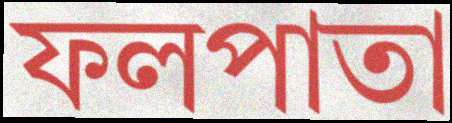
ফলপাতা